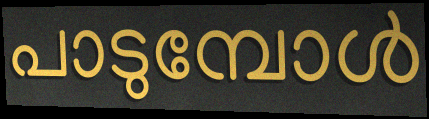
പാടുമ്പോൾ